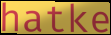
hatke